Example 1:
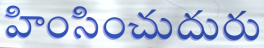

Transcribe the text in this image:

హింసించుదురు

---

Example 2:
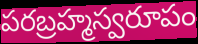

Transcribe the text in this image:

పరబ్రహ్మస్వరూపం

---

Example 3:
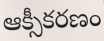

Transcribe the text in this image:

ఆక్సీకరణం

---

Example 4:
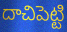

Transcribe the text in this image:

దాచిపెట్టి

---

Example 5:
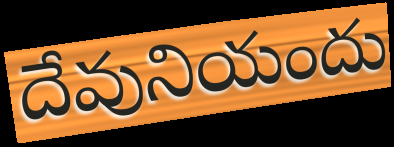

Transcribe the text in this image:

దేవునియందు